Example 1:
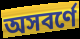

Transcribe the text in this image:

অসবর্ণে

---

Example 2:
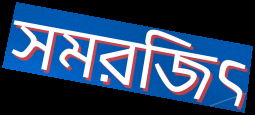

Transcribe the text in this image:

সমরজিৎ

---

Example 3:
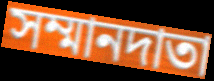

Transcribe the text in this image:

সম্মানদাতা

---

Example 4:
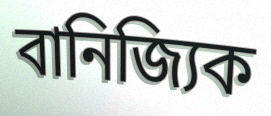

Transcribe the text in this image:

বানিজ্যিক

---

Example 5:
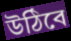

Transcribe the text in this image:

উঠিবে